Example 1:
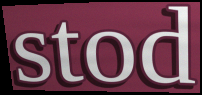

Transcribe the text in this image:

stod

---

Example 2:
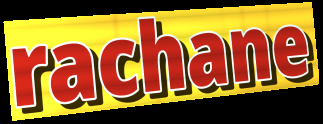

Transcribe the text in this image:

rachane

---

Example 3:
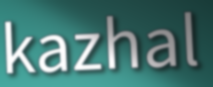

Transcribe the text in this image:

kazhal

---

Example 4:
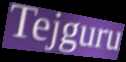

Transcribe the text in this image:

Tejguru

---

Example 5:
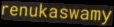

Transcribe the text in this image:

renukaswamy